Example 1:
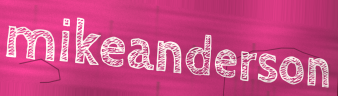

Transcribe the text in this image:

mikeanderson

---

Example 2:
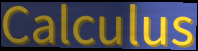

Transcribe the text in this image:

Calculus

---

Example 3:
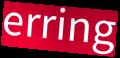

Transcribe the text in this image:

erring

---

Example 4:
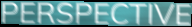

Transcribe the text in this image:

PERSPECTIVE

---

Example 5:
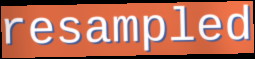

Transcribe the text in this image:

resampled